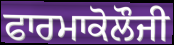
ਫਾਰਮਾਕੋਲੌਜੀ